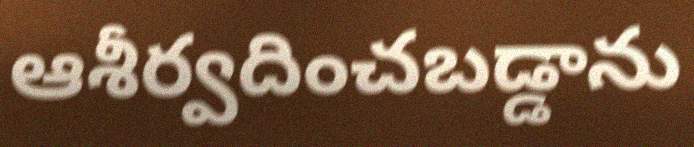
ఆశీర్వదించబడ్డాను